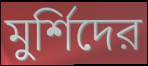
মুর্শিদের